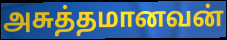
அசுத்தமானவன்